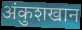
अंकुशखान